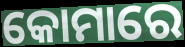
କୋମାରେ